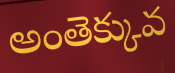
అంతెక్కువ